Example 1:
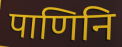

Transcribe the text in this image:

पाणिनि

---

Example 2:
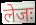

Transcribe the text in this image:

लेजः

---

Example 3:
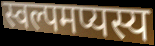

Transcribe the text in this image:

स्वल्पमप्यस्य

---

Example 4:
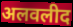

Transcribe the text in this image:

अलवलीद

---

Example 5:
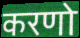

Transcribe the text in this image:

करणो